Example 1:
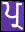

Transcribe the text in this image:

ਪ੍ਰ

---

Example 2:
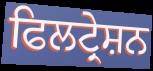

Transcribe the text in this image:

ਫਿਲਟ੍ਰੇਸ਼ਨ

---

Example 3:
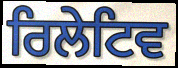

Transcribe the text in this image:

ਰਿਲੇਟਿਵ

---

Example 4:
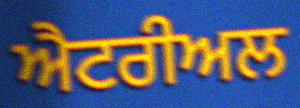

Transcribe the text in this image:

ਐਟਰੀਅਲ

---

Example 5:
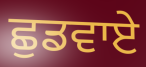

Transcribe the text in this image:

ਛੁਡਵਾਏ